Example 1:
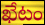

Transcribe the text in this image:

ఖేటం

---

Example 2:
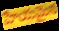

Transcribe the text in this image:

హేయమైన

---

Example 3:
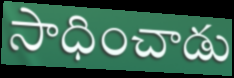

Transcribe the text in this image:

సాధించాడు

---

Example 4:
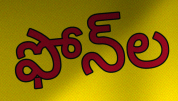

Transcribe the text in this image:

ఫోన్‌ల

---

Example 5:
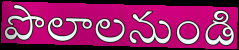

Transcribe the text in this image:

పొలాలనుండి